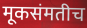
मूकसंमतीच